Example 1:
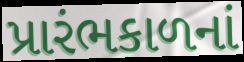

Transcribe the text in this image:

પ્રારંભકાળનાં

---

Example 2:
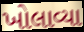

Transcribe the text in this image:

ખોલાવ્યા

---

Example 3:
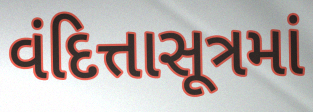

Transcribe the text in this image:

વંદિત્તાસૂત્રમાં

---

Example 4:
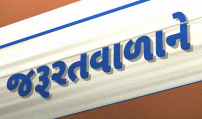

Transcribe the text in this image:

જરૂરતવાળાને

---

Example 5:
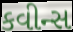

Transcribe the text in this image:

કવીન્સ